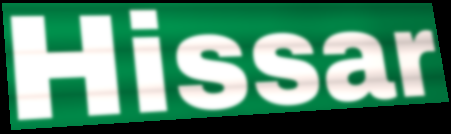
Hissar